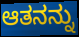
ಆತನನ್ನು